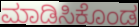
ಮಾಡಿಸಿಕೊಂಡ